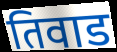
तिवाड